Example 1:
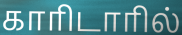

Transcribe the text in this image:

காரிடாரில்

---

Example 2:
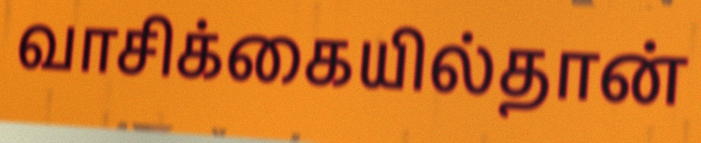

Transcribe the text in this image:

வாசிக்கையில்தான்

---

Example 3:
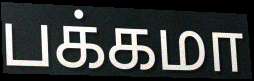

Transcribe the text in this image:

பக்கமா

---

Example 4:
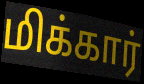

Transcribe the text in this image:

மிக்கார்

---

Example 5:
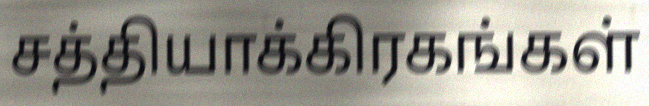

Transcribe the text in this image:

சத்தியாக்கிரகங்கள்